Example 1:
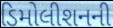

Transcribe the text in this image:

ડિમોલીશનની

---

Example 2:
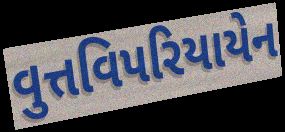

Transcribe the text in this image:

વુત્તવિપરિયાયેન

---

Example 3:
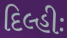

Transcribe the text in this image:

દિલ્હીઃ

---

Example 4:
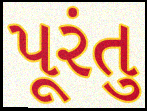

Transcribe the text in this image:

પૂરંતુ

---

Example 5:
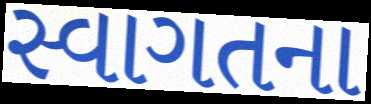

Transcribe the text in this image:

સ્વાગતના